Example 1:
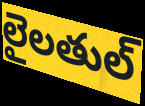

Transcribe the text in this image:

లైలతుల్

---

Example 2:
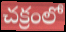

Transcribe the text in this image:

చక్రంలో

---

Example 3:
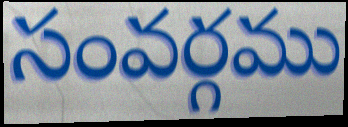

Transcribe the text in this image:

సంవర్గము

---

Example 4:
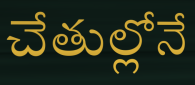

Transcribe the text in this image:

చేతుల్లోనే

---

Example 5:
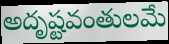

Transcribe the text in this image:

అదృష్టవంతులమే